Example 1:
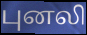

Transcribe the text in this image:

புனலி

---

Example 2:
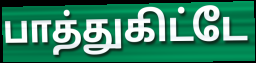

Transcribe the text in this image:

பாத்துகிட்டே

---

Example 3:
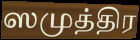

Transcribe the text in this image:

ஸமுத்திர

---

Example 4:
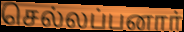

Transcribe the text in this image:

செல்லப்பனார்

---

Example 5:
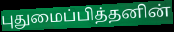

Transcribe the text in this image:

புதுமைப்பித்தனின்